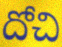
దోచి